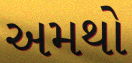
અમથો